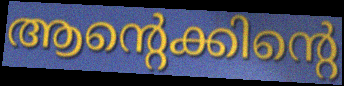
ആന്റെക്കിന്റെ